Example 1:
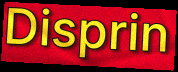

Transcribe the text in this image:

Disprin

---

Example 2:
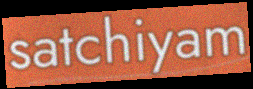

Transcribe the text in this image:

satchiyam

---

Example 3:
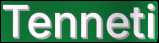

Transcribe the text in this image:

Tenneti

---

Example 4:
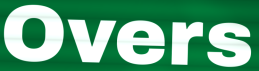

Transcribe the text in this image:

Overs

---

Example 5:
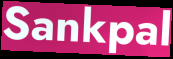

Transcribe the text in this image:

Sankpal